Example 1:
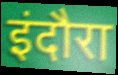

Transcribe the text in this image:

इंदौरा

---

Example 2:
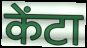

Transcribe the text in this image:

केंटा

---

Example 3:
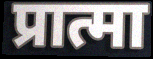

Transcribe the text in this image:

प्रात्मा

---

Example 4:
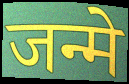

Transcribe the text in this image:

जन्मे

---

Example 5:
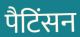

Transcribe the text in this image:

पैटिंसन